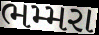
ભમ્મરા